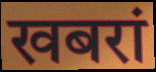
खबरां